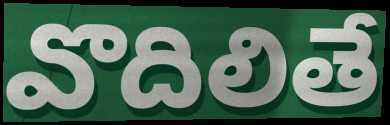
వొదిలితే